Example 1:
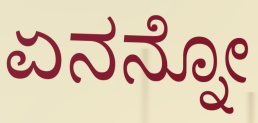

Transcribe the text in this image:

ಏನನ್ನೋ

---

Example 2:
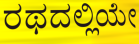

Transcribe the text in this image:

ರಥದಲ್ಲಿಯೇ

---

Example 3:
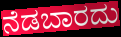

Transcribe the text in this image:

ನೆಡಬಾರದು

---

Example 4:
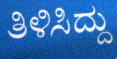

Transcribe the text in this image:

ತಿಳಿಸಿದ್ದು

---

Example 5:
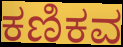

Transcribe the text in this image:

ಕಣಿಕವ